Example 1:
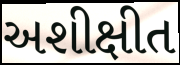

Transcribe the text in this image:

અશીક્ષીત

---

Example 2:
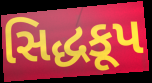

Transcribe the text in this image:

સિદ્ધકૂપ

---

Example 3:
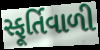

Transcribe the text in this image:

સ્ફૂર્તિવાળી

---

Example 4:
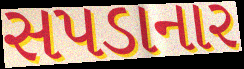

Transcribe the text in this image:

સપડાનાર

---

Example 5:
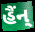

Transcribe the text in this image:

હૈંન્